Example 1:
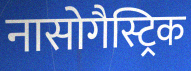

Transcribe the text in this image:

नासोगैस्ट्रिक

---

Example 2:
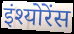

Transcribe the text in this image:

इंश्योरेंस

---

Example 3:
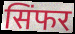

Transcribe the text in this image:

सिंफर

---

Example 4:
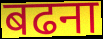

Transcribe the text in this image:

बढना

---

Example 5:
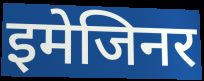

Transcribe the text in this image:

इमेजिनर